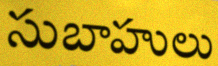
సుబాహులు